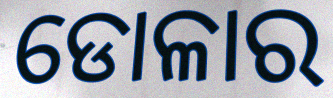
ଡୋଳାର